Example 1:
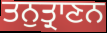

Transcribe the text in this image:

ਤਨੁਤ੍ਰਾਣਨ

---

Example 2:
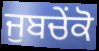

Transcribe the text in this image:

ਜੁਬਚੇਂਕੋ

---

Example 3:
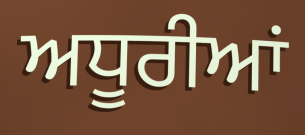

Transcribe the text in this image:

ਅਧੂਰੀਆਂ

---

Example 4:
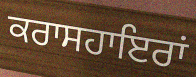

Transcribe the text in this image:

ਕਰਾਸਹਾਇਰਾਂ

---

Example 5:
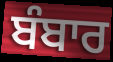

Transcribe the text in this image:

ਬੰਬਾਰ